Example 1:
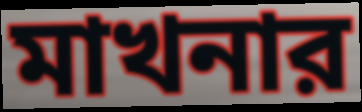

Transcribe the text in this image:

মাখনার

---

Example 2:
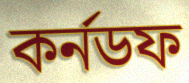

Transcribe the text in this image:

কর্নডফ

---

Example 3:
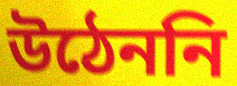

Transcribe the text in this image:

উঠেননি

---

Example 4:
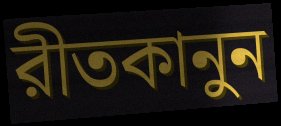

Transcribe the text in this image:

রীতকানুন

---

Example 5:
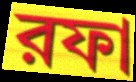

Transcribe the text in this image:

রফা